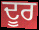
ਦੂਰ